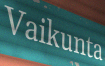
Vaikunta